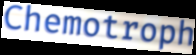
Chemotroph